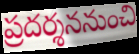
ప్రదర్శననుంచి